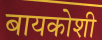
बायकोशी